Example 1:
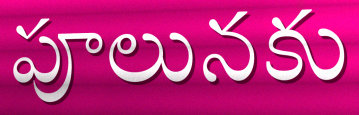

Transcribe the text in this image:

పూలునకు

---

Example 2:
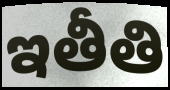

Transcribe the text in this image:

ఇతీతి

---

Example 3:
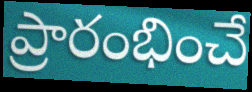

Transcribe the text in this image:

ప్రారంభించే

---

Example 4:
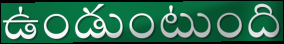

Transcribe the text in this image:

ఉండుంటుంది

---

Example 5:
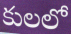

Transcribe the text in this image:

కులలో